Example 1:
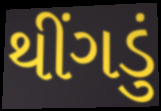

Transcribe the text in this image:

થીંગડું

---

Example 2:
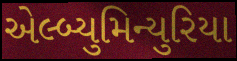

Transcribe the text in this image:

એલ્બ્યુમિન્યુરિયા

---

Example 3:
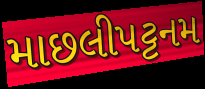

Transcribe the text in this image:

માછલીપટ્ટનમ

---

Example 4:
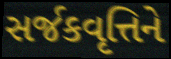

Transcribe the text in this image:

સર્જકવૃત્તિને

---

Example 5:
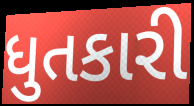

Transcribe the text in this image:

ધુતકારી